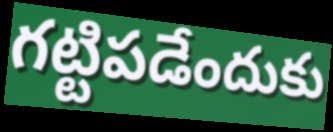
గట్టిపడేందుకు